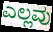
ಎಲ್ಲವು